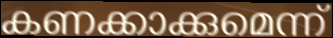
കണക്കാക്കുമെന്ന്